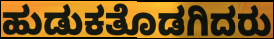
ಹುಡುಕತೊಡಗಿದರು